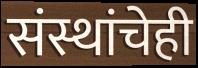
संस्थांचेही